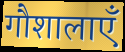
गौशालाएँ